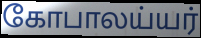
கோபாலய்யர்